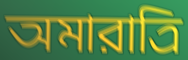
অমারাত্রি